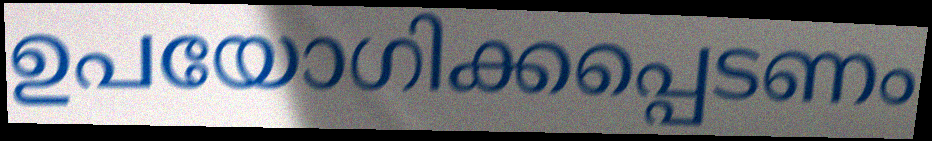
ഉപയോഗിക്കപ്പെടണം